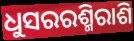
ଧୁସରରଶ୍ମିରାଶି